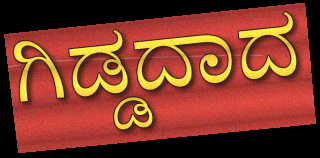
ಗಿಡ್ಡದಾದ